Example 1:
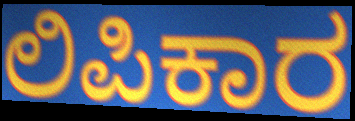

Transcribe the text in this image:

ಲಿಪಿಕಾರ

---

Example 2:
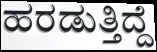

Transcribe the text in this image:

ಹರಡುತ್ತಿದ್ದೆ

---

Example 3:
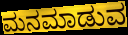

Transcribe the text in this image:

ಮನಮಾಡುವ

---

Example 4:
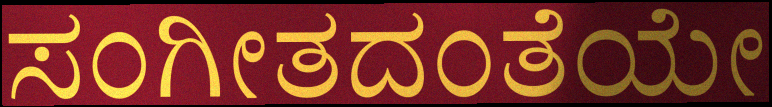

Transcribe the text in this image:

ಸಂಗೀತದಂತೆಯೇ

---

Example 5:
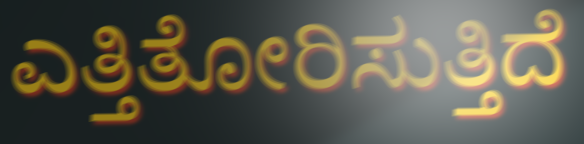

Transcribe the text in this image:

ಎತ್ತಿತೋರಿಸುತ್ತಿದೆ